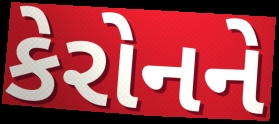
કેરોનને